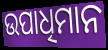
ଉପାଧିମାନ